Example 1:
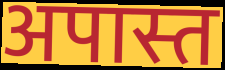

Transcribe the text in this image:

अपास्त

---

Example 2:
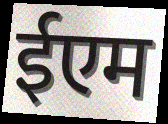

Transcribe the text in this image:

ईएम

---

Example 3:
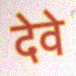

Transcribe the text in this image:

देवे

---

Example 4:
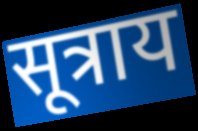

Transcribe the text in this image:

सूत्राय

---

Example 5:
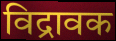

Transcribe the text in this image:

विद्रावक